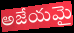
అజేయమై